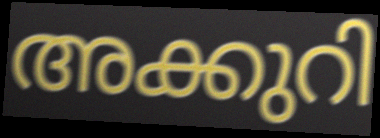
അക്കുറി